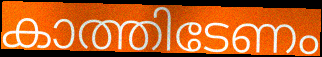
കാത്തിടേണം